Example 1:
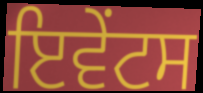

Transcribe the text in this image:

ਇਵੇੰਟਸ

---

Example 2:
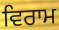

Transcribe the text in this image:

ਵਿਰਾਮ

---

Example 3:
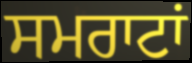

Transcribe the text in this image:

ਸਮਰਾਟਾਂ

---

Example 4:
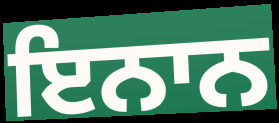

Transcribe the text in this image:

ਇਨਾਨ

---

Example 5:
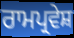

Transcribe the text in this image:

ਰਾਮਪ੍ਰਵੇਸ਼